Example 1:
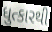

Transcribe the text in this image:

ધુત્કારથી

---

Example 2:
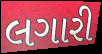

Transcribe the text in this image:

લગારી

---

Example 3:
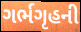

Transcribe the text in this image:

ગર્ભગૃહની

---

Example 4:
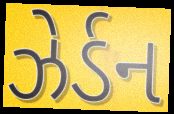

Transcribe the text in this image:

ઝેર્ડન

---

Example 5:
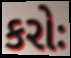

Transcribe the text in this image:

કરોઃ